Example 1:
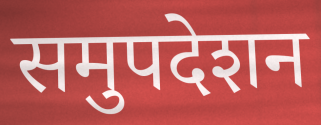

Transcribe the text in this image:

समुपदेशन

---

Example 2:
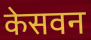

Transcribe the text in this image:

केसवन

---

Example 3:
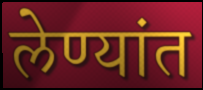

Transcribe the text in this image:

लेण्यांत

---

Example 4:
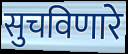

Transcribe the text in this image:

सुचविणारे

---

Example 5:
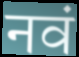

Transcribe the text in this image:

नवं